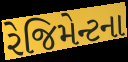
રેજિમેન્ટના